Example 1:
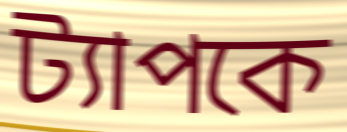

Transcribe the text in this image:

ট্যাপকে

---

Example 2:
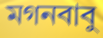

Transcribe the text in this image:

মগনবাবু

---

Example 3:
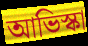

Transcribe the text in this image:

আভিস্কা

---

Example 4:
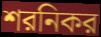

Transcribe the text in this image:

শরনিকর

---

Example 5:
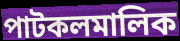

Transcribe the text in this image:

পাটকলমালিক